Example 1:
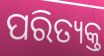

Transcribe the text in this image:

ପରିତ୍ୟକ୍ତ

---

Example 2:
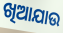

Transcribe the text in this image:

ଖିଆଯାଉ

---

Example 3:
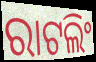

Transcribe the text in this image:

ରାଟଲିଂ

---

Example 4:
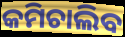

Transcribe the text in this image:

କମିଚାଲିବ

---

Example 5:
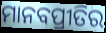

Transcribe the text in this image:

ମାନବପ୍ରୀତିର